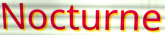
Nocturne